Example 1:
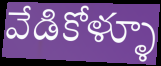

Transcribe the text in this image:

వేడికోళ్ళూ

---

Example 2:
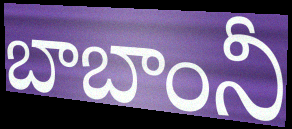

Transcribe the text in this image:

బాబాంనీ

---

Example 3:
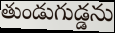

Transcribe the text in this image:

తుండుగుడ్డను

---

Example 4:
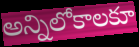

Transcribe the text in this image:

అన్నిలోకాలకూ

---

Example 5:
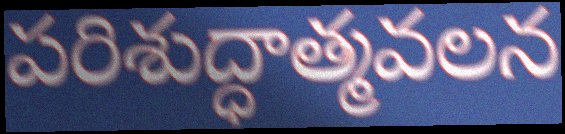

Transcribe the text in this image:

పరిశుద్ధాత్మవలన